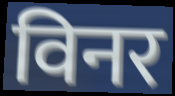
विनर